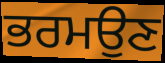
ਭਰਮਉਣ